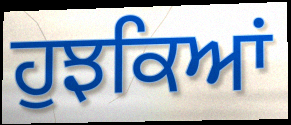
ਹੁਝਕਿਆਂ